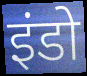
इंडो